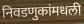
निवडणुकांमधली